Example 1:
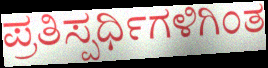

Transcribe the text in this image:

ಪ್ರತಿಸ್ಪರ್ಧಿಗಳಿಗಿಂತ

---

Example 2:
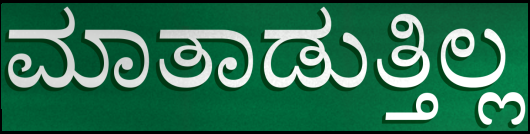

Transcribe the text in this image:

ಮಾತಾಡುತ್ತಿಲ್ಲ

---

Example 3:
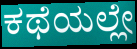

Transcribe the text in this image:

ಕಥೆಯಲ್ಲೇ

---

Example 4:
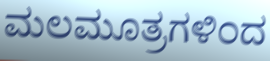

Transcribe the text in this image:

ಮಲಮೂತ್ರಗಳಿಂದ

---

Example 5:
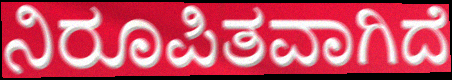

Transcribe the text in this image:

ನಿರೂಪಿತವಾಗಿದೆ